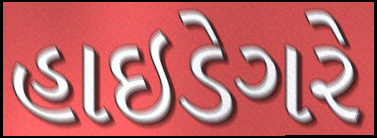
હાઇડેગરે